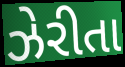
ઝેરીતા